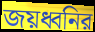
জয়ধ্বনির